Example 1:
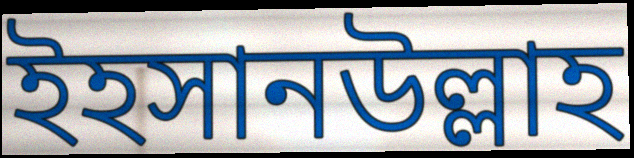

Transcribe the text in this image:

ইহসানউল্লাহ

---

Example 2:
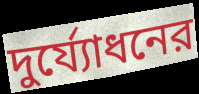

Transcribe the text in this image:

দুর্য্যোধনের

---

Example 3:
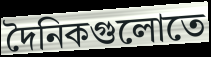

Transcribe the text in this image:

দৈনিকগুলোতে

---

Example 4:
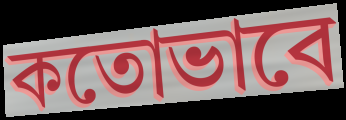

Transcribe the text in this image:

কতোভাবে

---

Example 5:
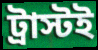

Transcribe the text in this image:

ট্রাস্টই